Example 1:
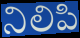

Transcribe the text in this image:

నిలిపి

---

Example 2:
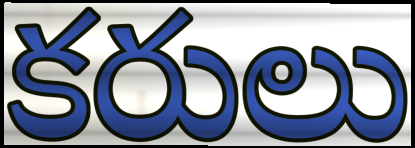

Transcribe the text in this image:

కరులు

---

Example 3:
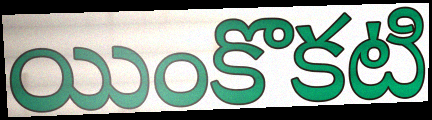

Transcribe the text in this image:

యింకొకటి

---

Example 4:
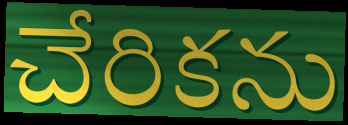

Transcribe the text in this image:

చేరికను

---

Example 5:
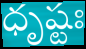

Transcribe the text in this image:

ధృష్టః